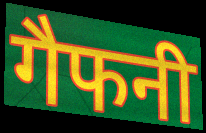
गैफनी